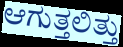
ಆಗುತ್ತಲಿತ್ತು